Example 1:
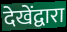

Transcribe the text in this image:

देखेंद्वारा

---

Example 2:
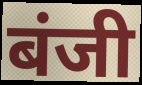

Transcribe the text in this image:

बंजी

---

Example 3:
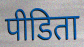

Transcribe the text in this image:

पीडिता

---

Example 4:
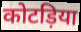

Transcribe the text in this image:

कोटड़िया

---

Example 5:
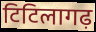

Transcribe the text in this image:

टिटिलागढ़